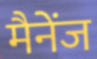
मैनेंज